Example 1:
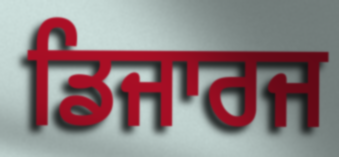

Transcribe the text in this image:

ਡਿਜਾਰਜ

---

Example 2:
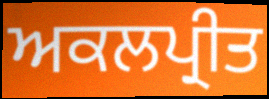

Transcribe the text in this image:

ਅਕਲਪ੍ਰੀਤ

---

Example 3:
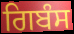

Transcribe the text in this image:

ਗਿਬੰਸ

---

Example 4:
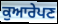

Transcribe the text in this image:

ਕੁਆਰੇਪਣ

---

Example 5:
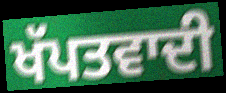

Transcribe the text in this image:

ਖੱਪਤਵਾਦੀ